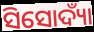
ସିସୋଦ୍ୟାଁ